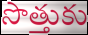
సొత్తుకు